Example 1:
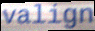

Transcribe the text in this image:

valign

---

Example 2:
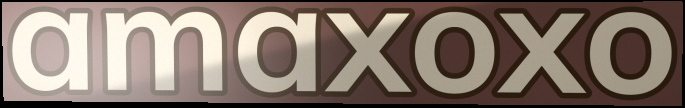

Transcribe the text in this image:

amaxoxo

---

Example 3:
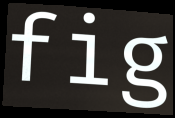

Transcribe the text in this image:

fig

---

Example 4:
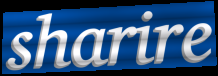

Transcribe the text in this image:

sharire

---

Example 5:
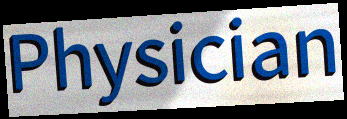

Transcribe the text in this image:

Physician